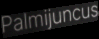
Palmijuncus